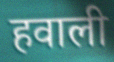
हवाली